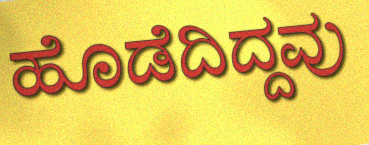
ಹೊಡೆದಿದ್ದವು